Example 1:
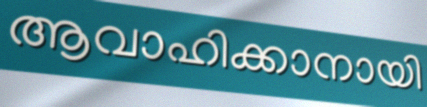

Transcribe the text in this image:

ആവാഹിക്കാനായി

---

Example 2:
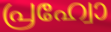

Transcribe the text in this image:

പ്രഹ്വോ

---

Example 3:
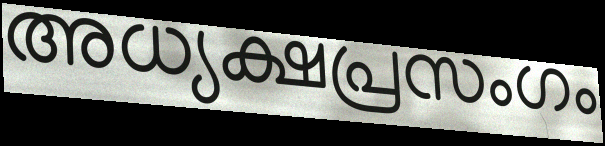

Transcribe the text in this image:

അധ്യക്ഷപ്രസംഗം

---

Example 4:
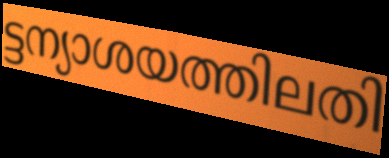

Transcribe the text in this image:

ട്ടന്യാശയത്തിലതി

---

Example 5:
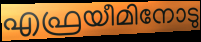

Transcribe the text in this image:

എഫ്രയീമിനോടു